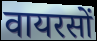
वायरसों